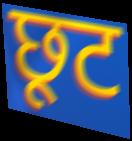
छूट